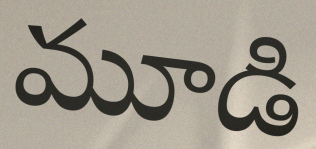
మూడి